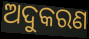
ଅଦୁକରଣ